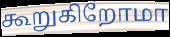
கூறுகிறோமா